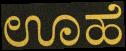
ಊಹೆ